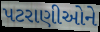
પટરાણીઓને